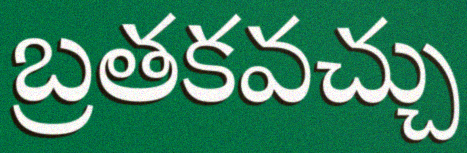
బ్రతకవచ్చు